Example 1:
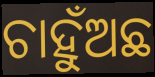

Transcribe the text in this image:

ଚାହୁଁଅଛ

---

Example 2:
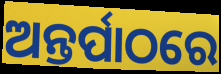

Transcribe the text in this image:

ଅନ୍ତର୍ପାଠରେ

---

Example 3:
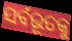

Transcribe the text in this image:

ସର୍ବଭୂତକୁ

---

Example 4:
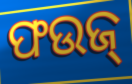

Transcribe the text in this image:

ଫଉଜ୍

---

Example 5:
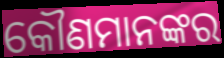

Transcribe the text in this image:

କୌଣମାନଙ୍କର